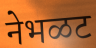
नेभळट